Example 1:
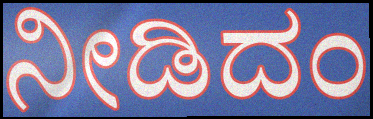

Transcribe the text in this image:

ನೀಡಿದಂ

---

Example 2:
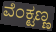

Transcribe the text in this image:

ವೆಂಕ್ಟಣ್ಣ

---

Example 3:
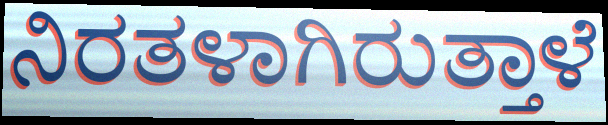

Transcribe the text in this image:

ನಿರತಳಾಗಿರುತ್ತಾಳೆ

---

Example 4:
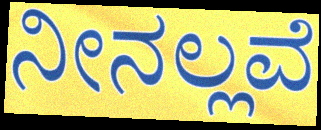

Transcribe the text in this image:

ನೀನಲ್ಲವೆ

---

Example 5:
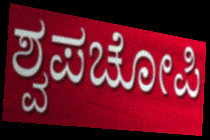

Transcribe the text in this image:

ಶ್ವಪಚೋಪಿ